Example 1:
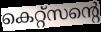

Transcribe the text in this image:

കെറ്റ്സന്റെ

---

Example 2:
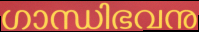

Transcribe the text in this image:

ഗാന്ധിഭവനു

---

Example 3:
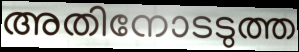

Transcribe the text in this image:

അതിനോടടുത്ത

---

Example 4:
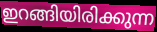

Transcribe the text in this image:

ഇറങ്ങിയിരിക്കുന്ന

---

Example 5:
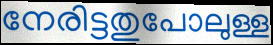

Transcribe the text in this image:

നേരിട്ടതുപോലുള്ള